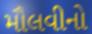
મૌલવીનો